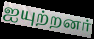
ஐயுற்றனர்